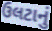
ઉલટાનું